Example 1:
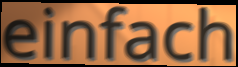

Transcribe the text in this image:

einfach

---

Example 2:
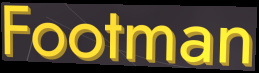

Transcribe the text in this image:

Footman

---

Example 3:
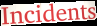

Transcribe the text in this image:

Incidents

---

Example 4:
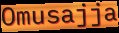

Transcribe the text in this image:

Omusajja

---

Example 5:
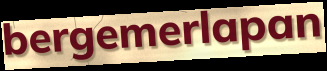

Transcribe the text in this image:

bergemerlapan